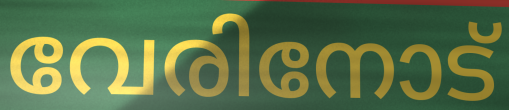
വേരിനോട്